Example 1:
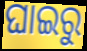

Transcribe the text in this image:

ଘାଇରୁ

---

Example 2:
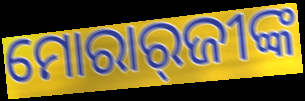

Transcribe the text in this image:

ମୋରାର୍‌ଜୀଙ୍କ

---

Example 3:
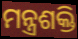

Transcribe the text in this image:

ମନ୍ତ୍ରଶକ୍ତି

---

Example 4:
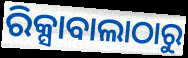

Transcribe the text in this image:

ରିକ୍ସାବାଲାଠାରୁ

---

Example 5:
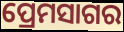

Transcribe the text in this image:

ପ୍ରେମସାଗର